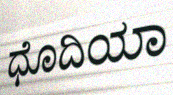
ಧೊದಿಯಾ